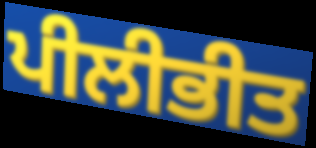
ਪੀਲੀਭੀਤ